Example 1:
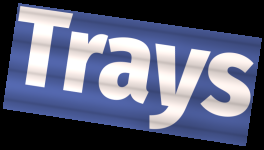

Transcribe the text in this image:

Trays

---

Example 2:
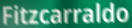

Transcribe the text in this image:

Fitzcarraldo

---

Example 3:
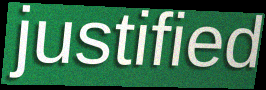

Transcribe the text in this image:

justified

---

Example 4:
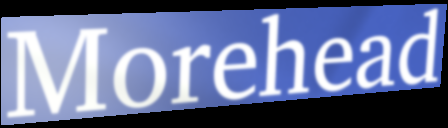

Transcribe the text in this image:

Morehead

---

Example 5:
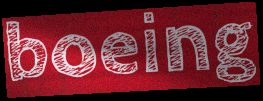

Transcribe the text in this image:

boeing